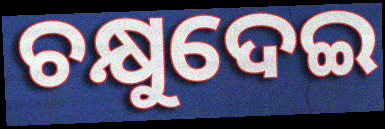
ଚକ୍ଷୁଦେଇ